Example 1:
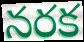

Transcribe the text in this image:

నరక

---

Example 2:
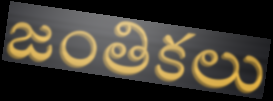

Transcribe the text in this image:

జంతికలు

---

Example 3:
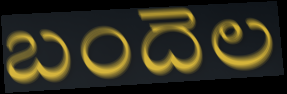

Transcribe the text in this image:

బందెల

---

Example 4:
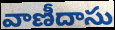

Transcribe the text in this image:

వాణీదాసు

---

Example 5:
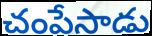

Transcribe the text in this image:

చంపేసాడు